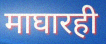
माघारही